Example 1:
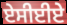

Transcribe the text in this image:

ਏਸੀਈਏ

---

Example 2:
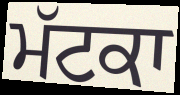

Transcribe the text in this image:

ਮੱਟਕਾ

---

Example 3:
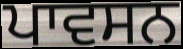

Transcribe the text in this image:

ਪਾਵਸਨ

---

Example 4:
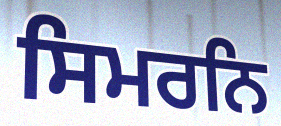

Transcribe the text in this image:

ਸਿਮਰਨਿ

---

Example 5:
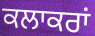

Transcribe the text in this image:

ਕਲਾਕਰਾਂ